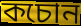
কচোন